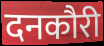
दनकौरी